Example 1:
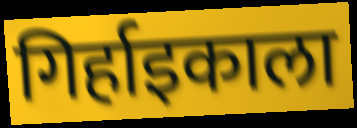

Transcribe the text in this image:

गिर्हाइकाला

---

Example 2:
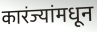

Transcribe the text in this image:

कारंज्यांमधून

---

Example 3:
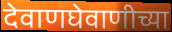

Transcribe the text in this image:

देवाणघेवाणीच्या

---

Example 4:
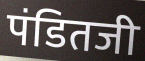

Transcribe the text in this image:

पंडितजी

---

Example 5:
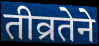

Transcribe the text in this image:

तीव्रतेने